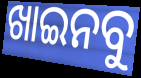
ଖାଇନବୁ